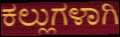
ಕಲ್ಲುಗಳಾಗಿ